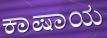
ಕಾಷಾಯ